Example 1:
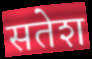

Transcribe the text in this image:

सतेश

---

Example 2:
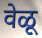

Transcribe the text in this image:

वेळू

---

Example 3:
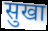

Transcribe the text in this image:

सुखा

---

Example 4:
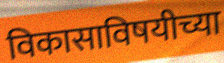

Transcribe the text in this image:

विकासाविषयीच्या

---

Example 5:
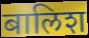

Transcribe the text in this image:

बालिश